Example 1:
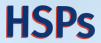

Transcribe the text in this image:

HSPs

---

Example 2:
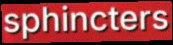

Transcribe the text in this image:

sphincters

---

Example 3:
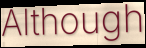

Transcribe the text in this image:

Although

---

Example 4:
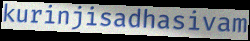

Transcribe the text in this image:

kurinjisadhasivam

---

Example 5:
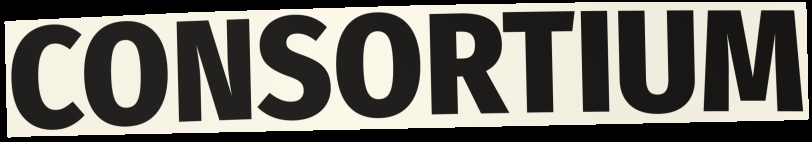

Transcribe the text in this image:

CONSORTIUM